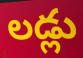
లడ్లు